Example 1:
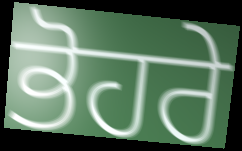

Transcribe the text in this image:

ਭੋਹਰੇ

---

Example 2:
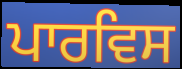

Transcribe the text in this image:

ਪਾਰਵਿਸ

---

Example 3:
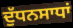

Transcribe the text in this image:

ਦੁੱਧਨਸਾਧਾਂ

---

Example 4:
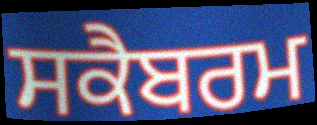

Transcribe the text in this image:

ਸਕੈਬਰਮ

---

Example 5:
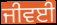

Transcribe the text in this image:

ਜੀਵਈ